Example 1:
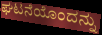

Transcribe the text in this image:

ಘಟನೆಯೊಂದನ್ನು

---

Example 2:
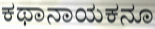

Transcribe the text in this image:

ಕಥಾನಾಯಕನೂ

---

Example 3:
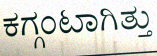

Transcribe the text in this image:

ಕಗ್ಗಂಟಾಗಿತ್ತು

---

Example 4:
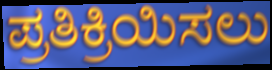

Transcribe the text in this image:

ಪ್ರತಿಕ್ರಿಯಿಸಲು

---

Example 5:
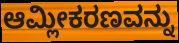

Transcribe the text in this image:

ಆಮ್ಲೀಕರಣವನ್ನು